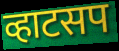
व्हाटसप